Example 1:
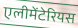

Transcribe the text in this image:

एलीमेंटेरियस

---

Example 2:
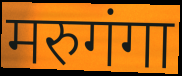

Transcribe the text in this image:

मरुगंगा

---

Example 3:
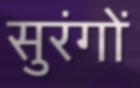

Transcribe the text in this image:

सुरंगों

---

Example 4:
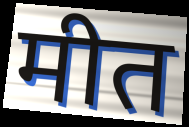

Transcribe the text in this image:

मीत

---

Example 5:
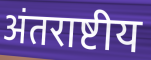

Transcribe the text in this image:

अंतराष्टीय